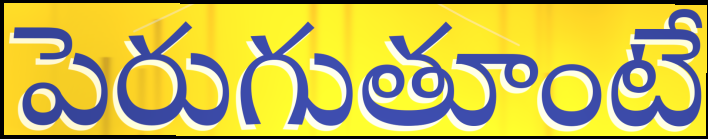
పెరుగుతూంటే